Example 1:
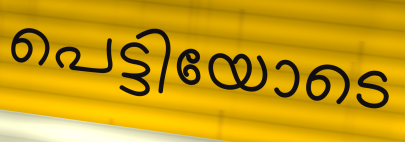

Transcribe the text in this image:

പെട്ടിയോടെ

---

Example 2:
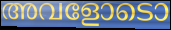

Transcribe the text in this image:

അവളോടൊ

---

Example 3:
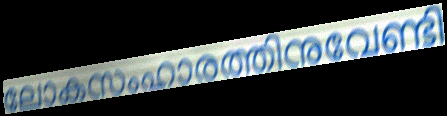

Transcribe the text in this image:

ലോകസംഹാരത്തിനുവേണ്ടി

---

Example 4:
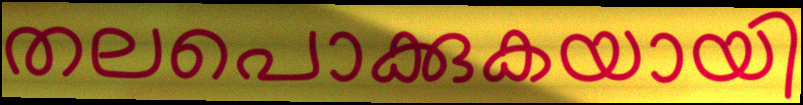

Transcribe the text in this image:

തലപൊക്കുകയായി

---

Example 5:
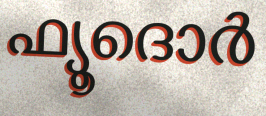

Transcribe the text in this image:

ഫ്യൂദൊർ